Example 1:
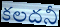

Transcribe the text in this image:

కలదనీ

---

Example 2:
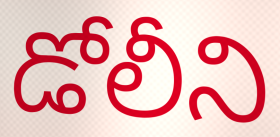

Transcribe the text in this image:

డోలీని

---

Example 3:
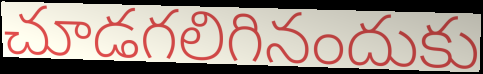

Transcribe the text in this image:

చూడగలిగినందుకు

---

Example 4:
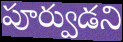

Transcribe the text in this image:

పూర్వుడని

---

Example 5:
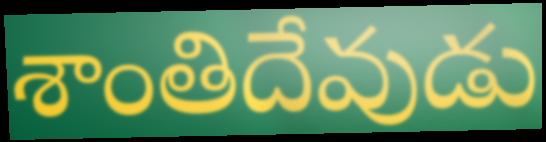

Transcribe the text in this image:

శాంతిదేవుడు